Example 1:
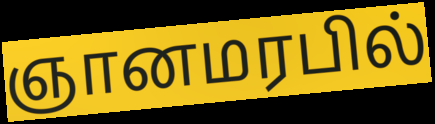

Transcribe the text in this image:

ஞானமரபில்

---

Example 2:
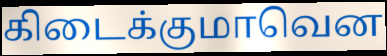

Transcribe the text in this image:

கிடைக்குமாவென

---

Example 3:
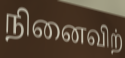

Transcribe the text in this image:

நினைவிற்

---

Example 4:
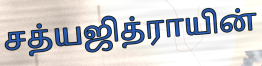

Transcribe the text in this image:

சத்யஜித்ராயின்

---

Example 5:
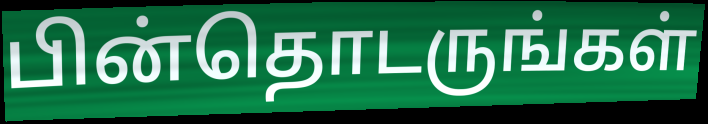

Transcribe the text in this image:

பின்தொடருங்கள்